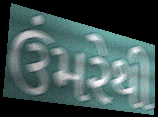
ઉંમરેથી